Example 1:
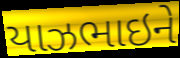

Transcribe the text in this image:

યાઝભાઇને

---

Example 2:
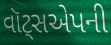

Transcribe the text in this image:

વૉટ્સએપની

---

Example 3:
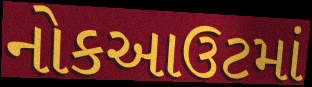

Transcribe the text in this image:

નોકઆઉટમાં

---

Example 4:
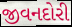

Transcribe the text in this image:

જીવનદોરી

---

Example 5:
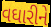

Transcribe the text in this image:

વઘારીને